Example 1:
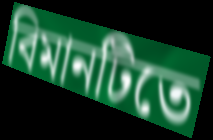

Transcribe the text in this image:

বিমানটিতে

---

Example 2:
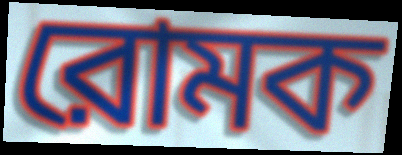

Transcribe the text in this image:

রোমক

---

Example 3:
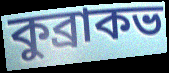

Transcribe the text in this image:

কুব্রাকভ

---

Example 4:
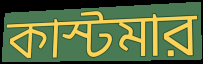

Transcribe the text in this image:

কাস্টমার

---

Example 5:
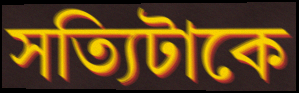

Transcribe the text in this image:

সত্যিটাকে